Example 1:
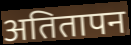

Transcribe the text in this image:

अतितापन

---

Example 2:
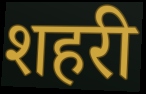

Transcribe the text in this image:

शहरी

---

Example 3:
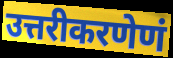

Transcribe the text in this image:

उत्तरीकरणेणं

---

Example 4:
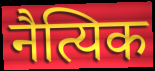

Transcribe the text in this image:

नैत्यिक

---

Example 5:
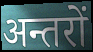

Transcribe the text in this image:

अन्तरों